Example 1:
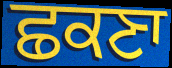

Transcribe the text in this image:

ਛਕਣਾ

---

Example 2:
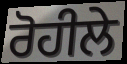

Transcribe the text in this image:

ਰੋਹੀਲੇ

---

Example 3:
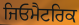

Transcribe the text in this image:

ਜਿਓਮੈਟਰਿਕ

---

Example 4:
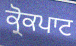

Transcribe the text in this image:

ਕ੍ਰੋਕਪਾਟ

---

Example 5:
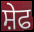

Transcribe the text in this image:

ਸ਼ੇਫ